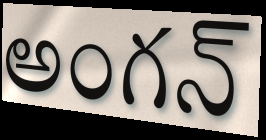
అంగన్